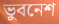
ভুবনেশ